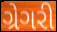
ગ્રેગરી